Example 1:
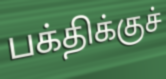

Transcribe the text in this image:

பக்திக்குச்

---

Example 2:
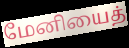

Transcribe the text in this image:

மேனியைத்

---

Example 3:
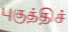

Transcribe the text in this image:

புகுத்திச்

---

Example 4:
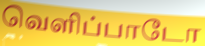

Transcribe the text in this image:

வெளிப்பாடோ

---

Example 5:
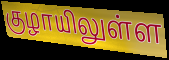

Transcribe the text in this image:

குழாயிலுள்ள